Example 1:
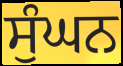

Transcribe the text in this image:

ਸੁੰਘਨ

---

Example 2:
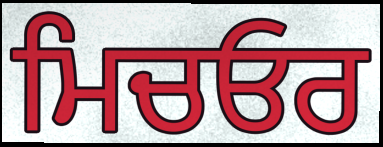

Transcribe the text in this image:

ਮਿਚਓਰ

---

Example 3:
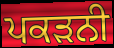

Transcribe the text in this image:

ਪਕੜਨੀ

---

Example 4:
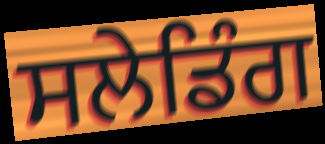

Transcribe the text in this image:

ਸਲੇਡਿੰਗ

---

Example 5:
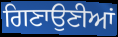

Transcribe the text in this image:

ਗਿਣਾਉਣੀਆਂ